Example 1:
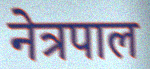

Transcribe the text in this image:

नेत्रपाल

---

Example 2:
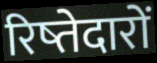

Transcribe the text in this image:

रिष्तेदारों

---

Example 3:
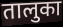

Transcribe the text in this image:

तालुका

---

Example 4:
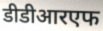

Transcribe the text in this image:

डीडीआरएफ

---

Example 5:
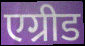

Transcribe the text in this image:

एग्रीड